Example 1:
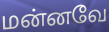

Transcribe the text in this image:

மன்னவே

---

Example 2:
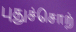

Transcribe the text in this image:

புதுச்சொற்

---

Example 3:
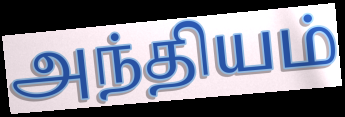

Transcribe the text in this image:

அந்தியம்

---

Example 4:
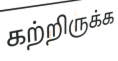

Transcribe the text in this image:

கற்றிருக்க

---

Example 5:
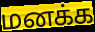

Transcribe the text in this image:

மனக்க